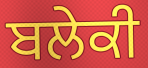
ਬਲੇਕੀ